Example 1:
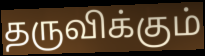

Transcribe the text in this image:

தருவிக்கும்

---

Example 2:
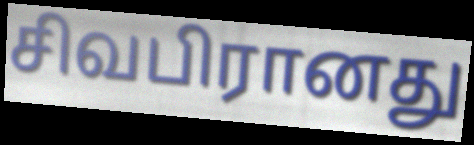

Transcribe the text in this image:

சிவபிரானது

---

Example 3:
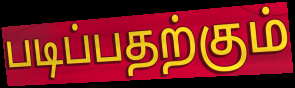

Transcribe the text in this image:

படிப்பதற்கும்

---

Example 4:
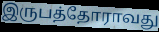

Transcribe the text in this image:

இருபத்தோராவது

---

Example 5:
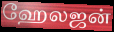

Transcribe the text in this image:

ஹேலஜன்